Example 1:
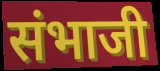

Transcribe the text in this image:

संभाजी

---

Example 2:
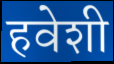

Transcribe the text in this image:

हवेशी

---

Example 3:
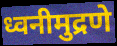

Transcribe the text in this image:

ध्वनीमुद्रणे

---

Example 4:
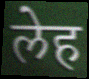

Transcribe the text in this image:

लेह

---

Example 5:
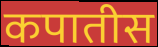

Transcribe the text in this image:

कपातीस